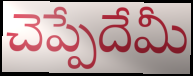
చెప్పేదేమీ